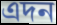
এদন